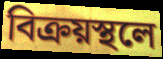
বিক্রয়স্থলে